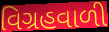
વિગ્રહવાળી